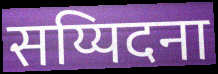
सय्यिदना